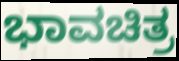
ಭಾವಚಿತ್ರ